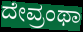
ದೇವ್ರಂಥಾ